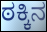
ಠಕ್ಕಿನ